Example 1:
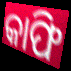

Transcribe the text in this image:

କାଫି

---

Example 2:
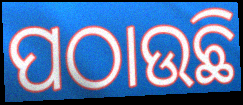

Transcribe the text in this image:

ପଠାଉଛି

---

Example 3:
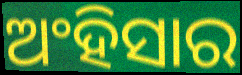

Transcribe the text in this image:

ଅଂହିସାର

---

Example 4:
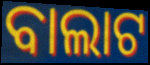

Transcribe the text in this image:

ବାଲାଟ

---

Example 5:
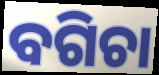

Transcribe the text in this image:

ବଗିଚା